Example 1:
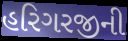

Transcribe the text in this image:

હરિગરજીની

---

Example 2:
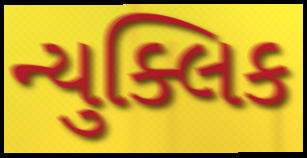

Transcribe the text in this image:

ન્યુક્લિક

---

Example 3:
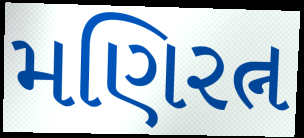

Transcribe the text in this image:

મણિરત્ન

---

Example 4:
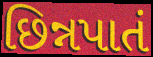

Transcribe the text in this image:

છિન્નપાતં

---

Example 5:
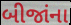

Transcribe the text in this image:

બીજાંના